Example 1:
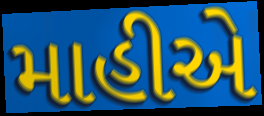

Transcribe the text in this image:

માહીએ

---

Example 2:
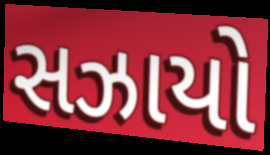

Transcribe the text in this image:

સઝાયો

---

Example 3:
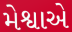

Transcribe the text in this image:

મેશ્વાએ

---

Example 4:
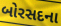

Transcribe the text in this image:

બોરસદના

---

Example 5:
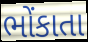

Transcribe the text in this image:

ભોંકાતા